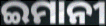
ଇମାନୀ